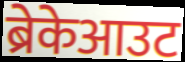
ब्रेकेआउट